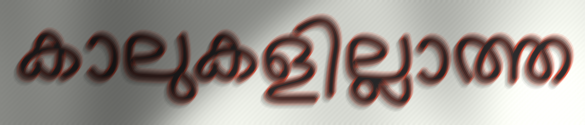
കാലുകളില്ലാത്ത